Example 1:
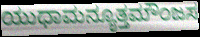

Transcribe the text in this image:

ಯುಧಾಮನ್ಯೂತ್ತಮೌಂಜಸ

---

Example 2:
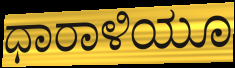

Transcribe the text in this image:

ಧಾರಾಳಿಯೂ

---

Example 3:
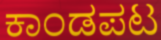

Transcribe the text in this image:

ಕಾಂಡಪಟ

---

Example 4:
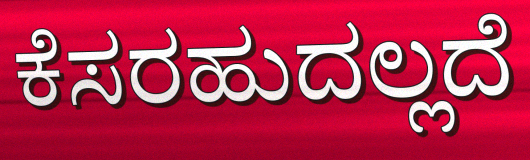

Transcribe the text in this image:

ಕೆಸರಹುದಲ್ಲದೆ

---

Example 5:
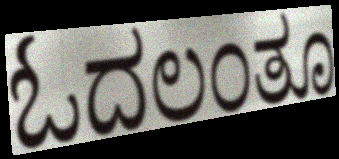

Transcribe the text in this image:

ಓದಲಂತೂ